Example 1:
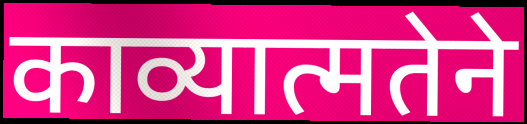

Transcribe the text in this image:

काव्यात्मतेने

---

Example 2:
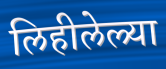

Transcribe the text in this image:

लिहीलेल्या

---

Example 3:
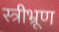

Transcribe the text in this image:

स्त्रीभ्रूण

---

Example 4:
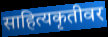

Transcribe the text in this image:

साहित्यकृतीवर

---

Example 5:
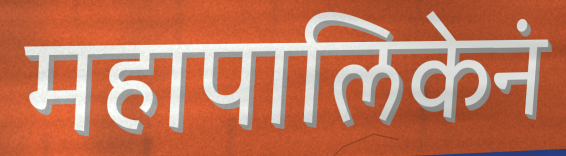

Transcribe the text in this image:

महापालिकेनं